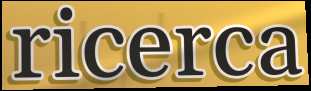
ricerca